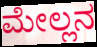
ಮೇಲ್ಲನ